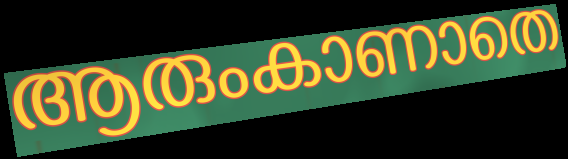
ആരുംകാണാതെ